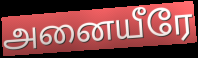
அனையீரே